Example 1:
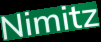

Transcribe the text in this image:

Nimitz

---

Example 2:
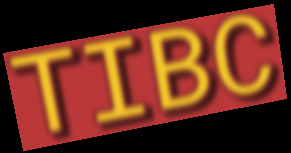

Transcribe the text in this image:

TIBC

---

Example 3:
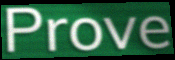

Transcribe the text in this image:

Prove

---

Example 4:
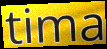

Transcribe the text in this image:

tima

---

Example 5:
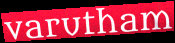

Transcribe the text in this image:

varutham